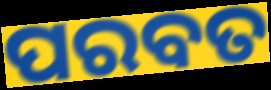
ପରବତ